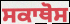
ਸਕਾਥੋਸ